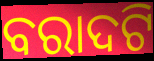
ବରାଦଟି